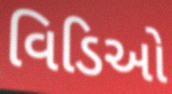
વિડિઓ